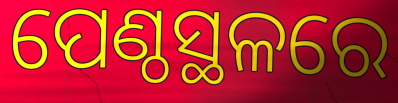
ପେଣ୍ଠସ୍ଥଳରେ